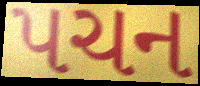
પચન